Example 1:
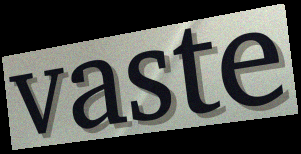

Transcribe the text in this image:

vaste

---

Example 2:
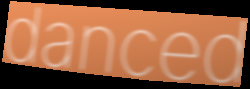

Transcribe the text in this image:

danced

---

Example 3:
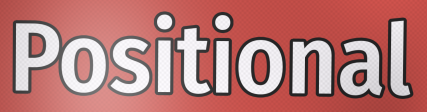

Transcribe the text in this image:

Positional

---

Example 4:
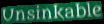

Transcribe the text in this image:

Unsinkable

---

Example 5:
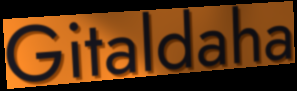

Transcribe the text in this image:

Gitaldaha